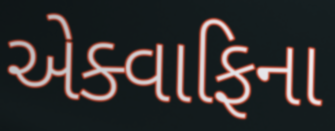
એક્વાફિના